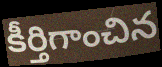
కీర్తిగాంచిన